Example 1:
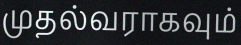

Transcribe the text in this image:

முதல்வராகவும்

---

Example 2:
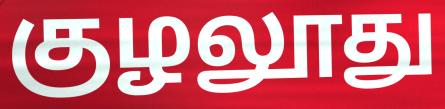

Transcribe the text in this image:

குழலூது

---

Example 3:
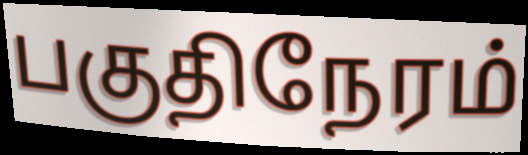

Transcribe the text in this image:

பகுதிநேரம்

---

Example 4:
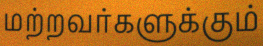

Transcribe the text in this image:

மற்றவர்களுக்கும்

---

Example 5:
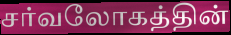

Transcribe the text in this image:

சர்வலோகத்தின்